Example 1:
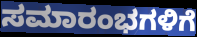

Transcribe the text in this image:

ಸಮಾರಂಭಗಳಿಗೆ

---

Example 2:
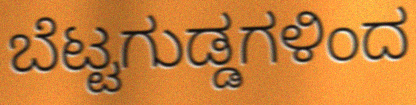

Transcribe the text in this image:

ಬೆಟ್ಟಗುಡ್ಡಗಳಿಂದ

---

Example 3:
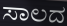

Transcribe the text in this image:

ಸಾಲದ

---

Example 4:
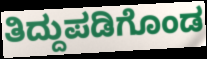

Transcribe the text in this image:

ತಿದ್ದುಪಡಿಗೊಂಡ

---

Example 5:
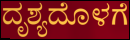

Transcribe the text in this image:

ದೃಶ್ಯದೊಳಗೆ